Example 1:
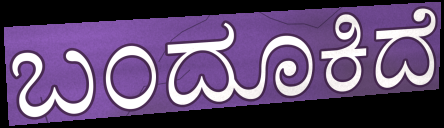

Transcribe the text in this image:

ಬಂದೂಕಿದೆ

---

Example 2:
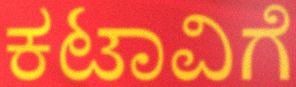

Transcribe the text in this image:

ಕಟಾವಿಗೆ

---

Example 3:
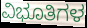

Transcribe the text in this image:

ವಿಭೂತಿಗಳ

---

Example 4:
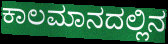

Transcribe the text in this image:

ಕಾಲಮಾನದಲ್ಲಿನ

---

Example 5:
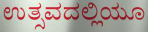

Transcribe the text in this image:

ಉತ್ಸವದಲ್ಲಿಯೂ